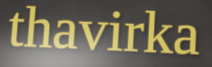
thavirka